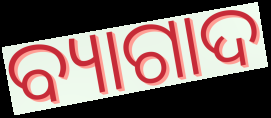
ବ୍ୟାଗାଦ